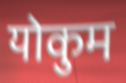
योकुम